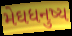
મેઘધનુષ્ય